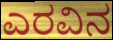
ಎರವಿನ